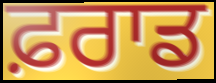
ਫ਼ਰਾਡ